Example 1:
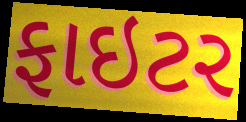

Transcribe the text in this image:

ફાઇટર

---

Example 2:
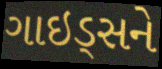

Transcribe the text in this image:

ગાઇડ્સને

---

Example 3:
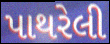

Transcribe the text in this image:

પાથરેલી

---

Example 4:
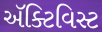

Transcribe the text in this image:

ઍક્ટિવિસ્ટ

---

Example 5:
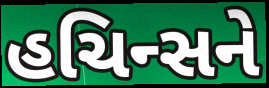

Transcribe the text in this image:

હચિન્સને